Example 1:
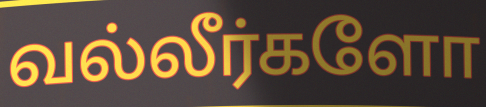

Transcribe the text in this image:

வல்லீர்களோ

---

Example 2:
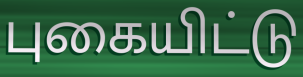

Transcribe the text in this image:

புகையிட்டு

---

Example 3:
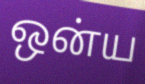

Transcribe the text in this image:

ஒன்ய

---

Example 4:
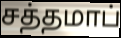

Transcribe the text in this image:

சத்தமாப்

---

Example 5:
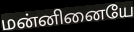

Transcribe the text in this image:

மன்னினையே